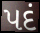
પદં